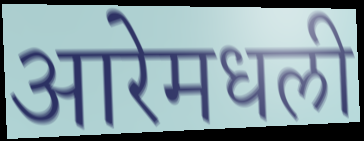
आरेमधली